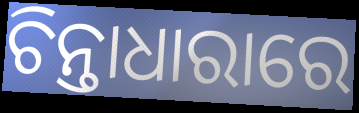
ଚିନ୍ତାଧାରାରେ